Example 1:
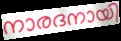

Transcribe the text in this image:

നാരദനായി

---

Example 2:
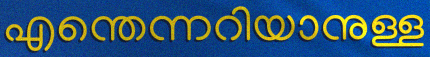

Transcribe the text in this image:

എന്തെന്നറിയാനുള്ള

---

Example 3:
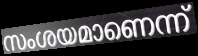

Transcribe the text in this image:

സംശയമാണെന്ന്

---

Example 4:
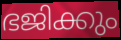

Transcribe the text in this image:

ഭജിക്കും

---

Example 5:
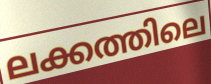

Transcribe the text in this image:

ലക്കത്തിലെ